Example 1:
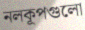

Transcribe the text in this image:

নলকূপগুলো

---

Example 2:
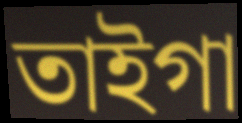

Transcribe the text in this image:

তাইগা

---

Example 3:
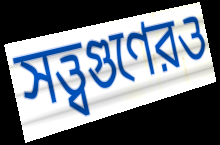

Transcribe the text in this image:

সত্ত্বগুণেরও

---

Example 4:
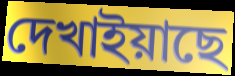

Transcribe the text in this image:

দেখাইয়াছে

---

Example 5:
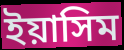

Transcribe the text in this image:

ইয়াসিম